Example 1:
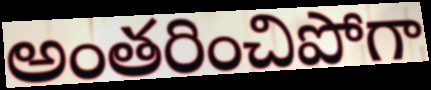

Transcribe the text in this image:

అంతరించిపోగా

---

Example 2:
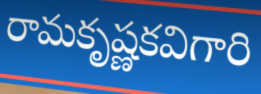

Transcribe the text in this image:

రామకృష్ణకవిగారి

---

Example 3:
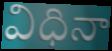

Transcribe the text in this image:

విధినా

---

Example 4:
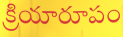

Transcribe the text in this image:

క్రియారూపం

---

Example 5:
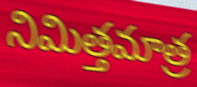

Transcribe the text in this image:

నిమిత్తమాత్ర